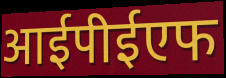
आईपीईएफ